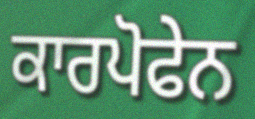
ਕਾਰਪੋਫੇਨ